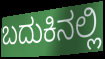
ಬದುಕಿನಲ್ಲಿ